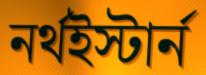
নর্থইস্টার্ন